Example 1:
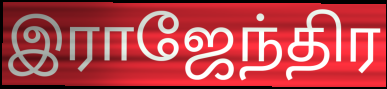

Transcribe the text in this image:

இராஜேந்திர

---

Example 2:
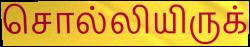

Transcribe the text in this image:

சொல்லியிருக்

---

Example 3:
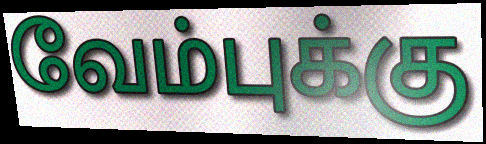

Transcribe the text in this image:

வேம்புக்கு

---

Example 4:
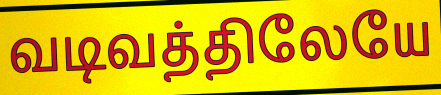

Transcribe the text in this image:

வடிவத்திலேயே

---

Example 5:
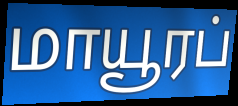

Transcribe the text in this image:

மாயூரப்